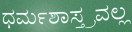
ಧರ್ಮಶಾಸ್ತ್ರವಲ್ಲ